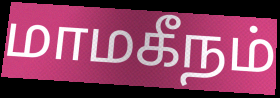
மாமகீநம்